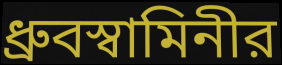
ধ্রুবস্বামিনীর